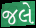
જલે